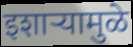
इशाऱ्यामुळे